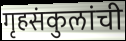
गृहसंकुलांची